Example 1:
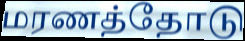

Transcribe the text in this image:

மரணத்தோடு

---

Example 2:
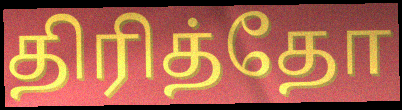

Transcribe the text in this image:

திரித்தோ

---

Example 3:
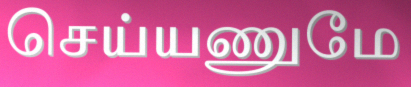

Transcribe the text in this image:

செய்யணுமே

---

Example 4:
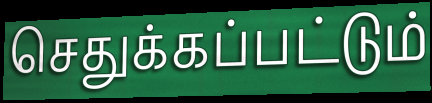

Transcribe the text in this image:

செதுக்கப்பட்டும்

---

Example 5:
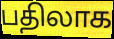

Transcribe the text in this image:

பதிலாக